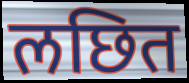
लछित